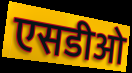
एसडीओ